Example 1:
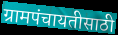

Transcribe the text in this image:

ग्रामपंचायतीसाठी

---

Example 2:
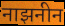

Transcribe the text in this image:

नाझनीन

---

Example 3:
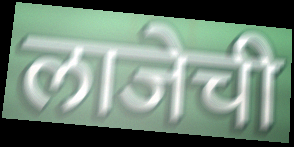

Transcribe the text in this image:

लाजेची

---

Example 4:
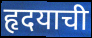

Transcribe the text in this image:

हृदयाची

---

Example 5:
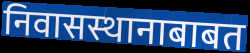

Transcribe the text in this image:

निवासस्थानाबाबत